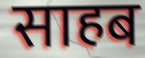
साहब